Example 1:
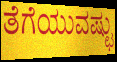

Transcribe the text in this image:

ತೆಗೆಯುವಷ್ಟು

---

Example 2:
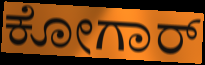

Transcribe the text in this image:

ಕೋಗಾರ್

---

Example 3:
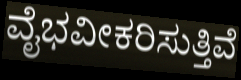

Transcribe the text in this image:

ವೈಭವೀಕರಿಸುತ್ತಿವೆ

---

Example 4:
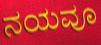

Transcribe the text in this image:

ನಯವೂ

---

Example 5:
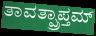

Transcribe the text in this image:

ತಾವತ್ಪ್ರಾಪ್ತಮ್